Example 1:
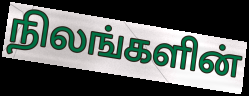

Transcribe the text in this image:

நிலங்களின்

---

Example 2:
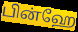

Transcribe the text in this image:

பின்ஹே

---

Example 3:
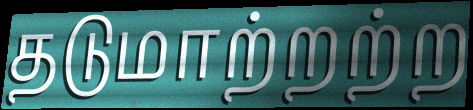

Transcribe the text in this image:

தடுமாற்றற்ற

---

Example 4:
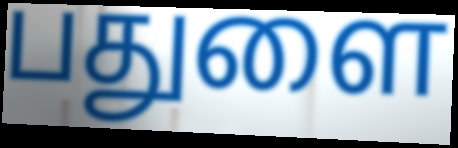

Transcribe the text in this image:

பதுளை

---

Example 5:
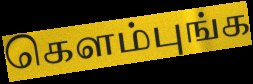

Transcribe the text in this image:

கெளம்புங்க